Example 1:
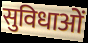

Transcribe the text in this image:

सुविधाओें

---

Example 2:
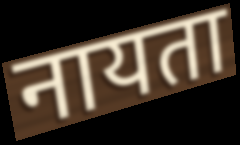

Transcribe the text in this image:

नायता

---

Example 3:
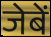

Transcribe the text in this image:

जेबें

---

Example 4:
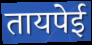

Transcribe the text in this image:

तायपेई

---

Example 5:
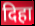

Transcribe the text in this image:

दिहा